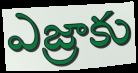
ఎజ్రాకు